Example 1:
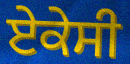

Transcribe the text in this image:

ਏਕੇਸੀ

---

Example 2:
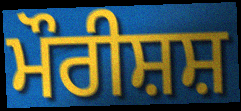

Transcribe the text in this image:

ਮੌਰੀਸ਼ਸ਼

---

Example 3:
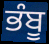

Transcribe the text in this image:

ਭੰਬੂ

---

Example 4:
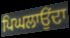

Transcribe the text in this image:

ਪਿਘਲਾਉਂਦਾ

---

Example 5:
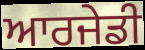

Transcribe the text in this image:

ਆਰਜੇਡੀ